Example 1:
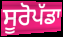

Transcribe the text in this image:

ਸੂਰੋਪੱਡਾ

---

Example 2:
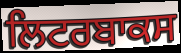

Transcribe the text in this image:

ਲਿਟਰਬਾਕਸ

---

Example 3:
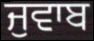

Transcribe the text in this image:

ਜੁਵਾਬ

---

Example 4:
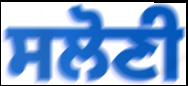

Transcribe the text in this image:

ਸਲੋਣੀ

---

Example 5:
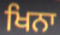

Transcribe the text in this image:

ਖਿਨਾ